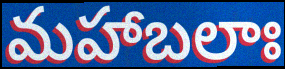
మహాబలాః